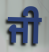
ਜੀ